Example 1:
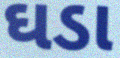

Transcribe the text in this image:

ઘડા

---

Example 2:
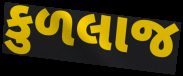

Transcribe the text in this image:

કુળલાજ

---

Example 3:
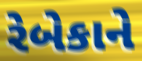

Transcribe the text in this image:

રેબેકાને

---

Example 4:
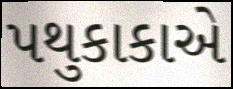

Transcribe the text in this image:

પથુકાકાએ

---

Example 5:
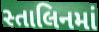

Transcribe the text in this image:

સ્તાલિનમાં